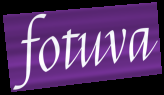
fotuva